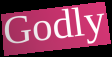
Godly